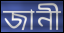
জানী